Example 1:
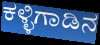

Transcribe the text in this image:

ಕಳ್ಳಿಗಾಡಿನ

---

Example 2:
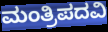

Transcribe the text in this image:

ಮಂತ್ರಿಪದವಿ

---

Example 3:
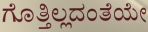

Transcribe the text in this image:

ಗೊತ್ತಿಲ್ಲದಂತೆಯೇ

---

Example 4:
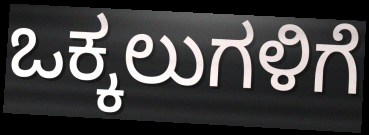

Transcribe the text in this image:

ಒಕ್ಕಲುಗಳಿಗೆ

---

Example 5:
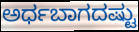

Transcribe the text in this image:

ಅರ್ಧಬಾಗದಷ್ಟು